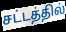
சட்டத்தில்